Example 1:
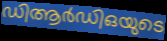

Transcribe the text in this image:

ഡിആർഡിഒയുടെ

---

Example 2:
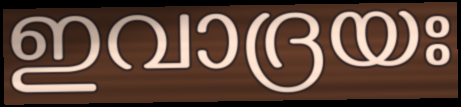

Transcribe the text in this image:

ഇവാദ്രയഃ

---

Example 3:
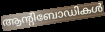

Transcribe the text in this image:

ആന്റിബോഡികൾ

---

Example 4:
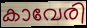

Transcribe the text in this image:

കാവേരി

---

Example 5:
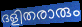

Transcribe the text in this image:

ദളിതരാരും